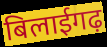
बिलाईगढ़